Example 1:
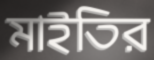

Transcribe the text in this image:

মাইতির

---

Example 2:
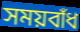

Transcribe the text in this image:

সময়বাঁধ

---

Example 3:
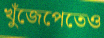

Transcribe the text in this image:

খুঁজেপেতেও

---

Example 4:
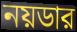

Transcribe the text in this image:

নয়ডার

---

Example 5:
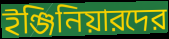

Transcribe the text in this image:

ইঞ্জিনিয়ারদের